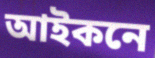
আইকনে